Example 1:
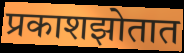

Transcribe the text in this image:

प्रकाशझोतात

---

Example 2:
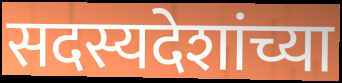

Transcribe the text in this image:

सदस्यदेशांच्या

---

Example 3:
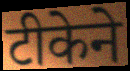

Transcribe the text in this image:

टीकेने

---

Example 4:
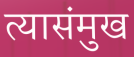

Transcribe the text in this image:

त्यासंमुख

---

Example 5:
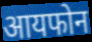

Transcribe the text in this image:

आयफोन